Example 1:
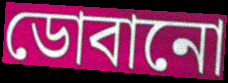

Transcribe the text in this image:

ডোবানো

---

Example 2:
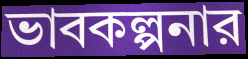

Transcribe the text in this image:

ভাবকল্পনার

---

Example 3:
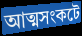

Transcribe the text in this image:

আত্মসংকটে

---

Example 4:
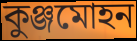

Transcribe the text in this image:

কুঞ্জমোহন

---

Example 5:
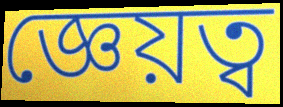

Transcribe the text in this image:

জ্ঞেয়ত্ব